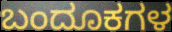
ಬಂದೂಕಗಳ